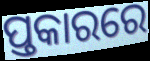
ପ୍ତକାରରେ